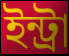
ইন্ট্রা